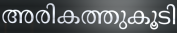
അരികത്തുകൂടി